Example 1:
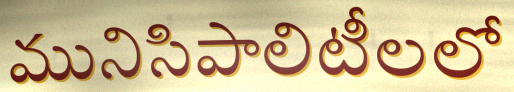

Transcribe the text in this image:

మునిసిపాలిటీలలో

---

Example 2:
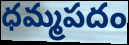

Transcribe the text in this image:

ధమ్మపదం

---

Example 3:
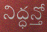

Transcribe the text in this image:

నిద్ధన్తో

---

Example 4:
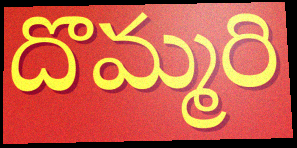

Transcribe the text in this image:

దొమ్మరి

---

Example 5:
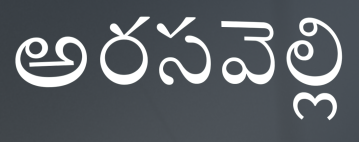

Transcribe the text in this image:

అరసవెల్లి